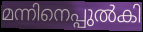
മന്നിനെപ്പുൽകി